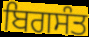
ਬਿਗਸੰਤ